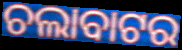
ଚଲାବାଟର